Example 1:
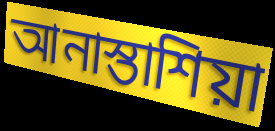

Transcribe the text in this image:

আনাস্তাশিয়া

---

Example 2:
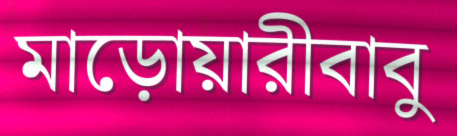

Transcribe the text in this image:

মাড়োয়ারীবাবু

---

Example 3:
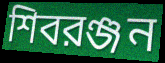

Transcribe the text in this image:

শিবরঞ্জন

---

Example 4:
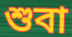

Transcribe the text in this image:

শুবা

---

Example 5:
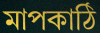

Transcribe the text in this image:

মাপকাঠি